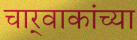
चार्वाकांच्या